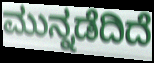
ಮುನ್ನಡೆದಿದೆ